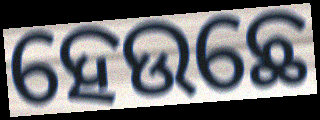
ହେଉଛେ